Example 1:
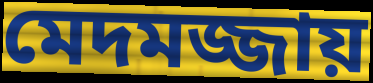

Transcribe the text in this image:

মেদমজ্জায়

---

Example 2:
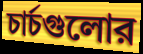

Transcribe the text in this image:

চার্চগুলোর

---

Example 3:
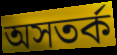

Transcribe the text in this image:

অসতর্ক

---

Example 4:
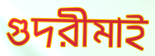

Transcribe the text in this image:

গুদরীমাই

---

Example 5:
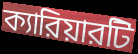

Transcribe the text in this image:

ক্যারিয়ারটি